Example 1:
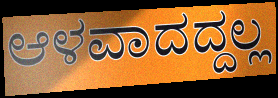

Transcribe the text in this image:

ಆಳವಾದದ್ದಲ್ಲ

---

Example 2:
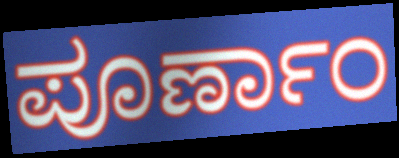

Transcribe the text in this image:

ಪೂರ್ಣಾಂ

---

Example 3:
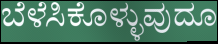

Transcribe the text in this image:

ಬೆಳೆಸಿಕೊಳ್ಳುವುದೂ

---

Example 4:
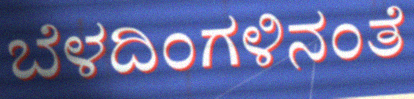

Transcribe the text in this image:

ಬೆಳದಿಂಗಳಿನಂತೆ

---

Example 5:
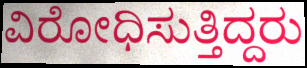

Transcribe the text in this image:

ವಿರೋಧಿಸುತ್ತಿದ್ದರು